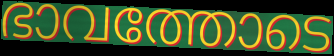
ഭാവത്തോടെ